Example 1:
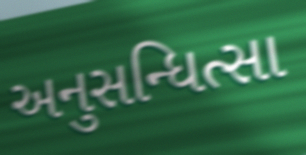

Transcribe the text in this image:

અનુસન્ધિત્સા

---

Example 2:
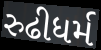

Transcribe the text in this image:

રુઢીધર્મ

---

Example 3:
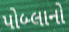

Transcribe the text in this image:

પોબ્લાનો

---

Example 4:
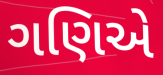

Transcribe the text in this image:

ગણિએ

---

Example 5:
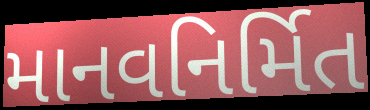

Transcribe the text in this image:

માનવનિર્મિત